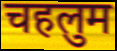
चहलुम